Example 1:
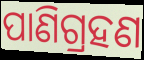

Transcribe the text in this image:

ପାଣିଗ୍ରହଣ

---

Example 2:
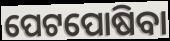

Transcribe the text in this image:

ପେଟପୋଷିବା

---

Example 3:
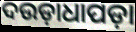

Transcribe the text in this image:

ଦଉଡ଼ାଧାପଡ଼ା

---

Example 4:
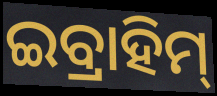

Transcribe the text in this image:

ଇବ୍ରାହିମ୍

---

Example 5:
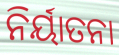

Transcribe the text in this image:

ନିର୍ୟାତନା